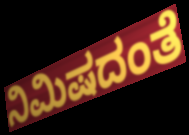
ನಿಮಿಷದಂತೆ